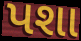
પશા